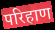
परिहाण